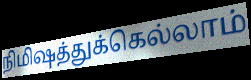
நிமிஷத்துக்கெல்லாம்